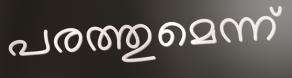
പരത്തുമെന്ന്